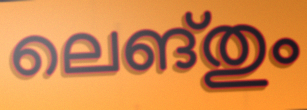
ലെങ്തും